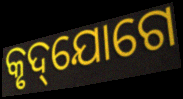
କୃଦ୍‌ଯୋଗେ